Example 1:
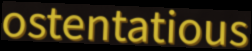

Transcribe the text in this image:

ostentatious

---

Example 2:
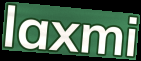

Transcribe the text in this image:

laxmi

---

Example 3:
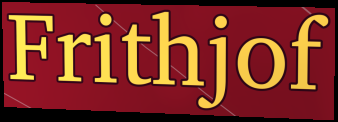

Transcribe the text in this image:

Frithjof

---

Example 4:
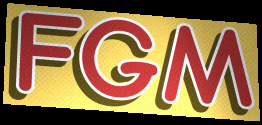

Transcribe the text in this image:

FGM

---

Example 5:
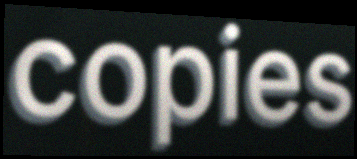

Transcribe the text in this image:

copies